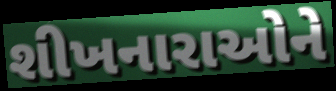
શીખનારાઓને